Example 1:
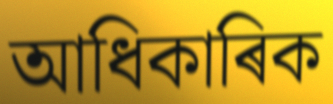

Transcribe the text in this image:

আধিকাৰিক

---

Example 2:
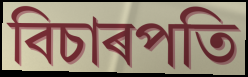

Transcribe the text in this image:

বিচাৰপতি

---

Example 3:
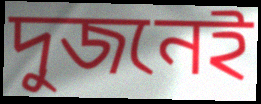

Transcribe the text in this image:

দুজনেই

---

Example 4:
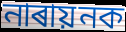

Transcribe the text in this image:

নাৰায়নক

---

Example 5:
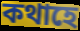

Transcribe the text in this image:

কথাহে